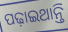
ପଢ଼ାଇଥାନ୍ତି